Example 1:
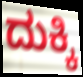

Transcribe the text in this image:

ದುಕ್ಕಿ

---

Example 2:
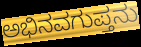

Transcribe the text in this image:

ಅಭಿನವಗುಪ್ತನು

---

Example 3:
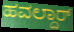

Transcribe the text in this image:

ಹವಲ್ದಾರ್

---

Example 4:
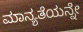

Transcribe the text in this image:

ಮಾನ್ಯತೆಯನ್ನೇ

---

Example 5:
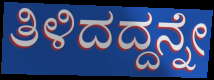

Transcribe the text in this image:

ತಿಳಿದದ್ದನ್ನೇ